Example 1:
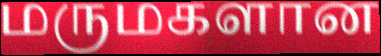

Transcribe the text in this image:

மருமகளான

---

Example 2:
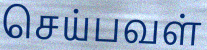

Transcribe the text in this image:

செய்பவள்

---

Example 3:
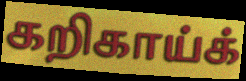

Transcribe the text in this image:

கறிகாய்க்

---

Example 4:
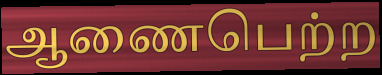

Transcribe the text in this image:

ஆணைபெற்ற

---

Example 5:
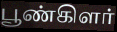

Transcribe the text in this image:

பூண்கிளர்